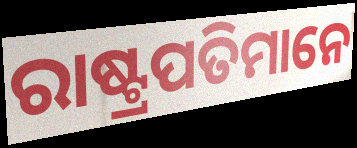
ରାଷ୍ଟ୍ରପତିମାନେ